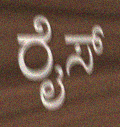
ರೈಸ್